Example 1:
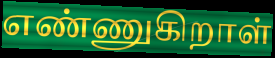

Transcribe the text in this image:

எண்ணுகிறாள்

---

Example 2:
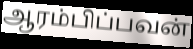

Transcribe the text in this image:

ஆரம்பிப்பவன்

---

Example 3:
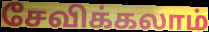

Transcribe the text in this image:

சேவிக்கலாம்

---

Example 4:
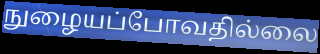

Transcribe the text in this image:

நுழையப்போவதில்லை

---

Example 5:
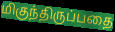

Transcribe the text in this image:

மிகுந்திருப்பதை